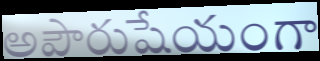
అపౌరుషేయంగా